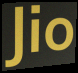
Jio